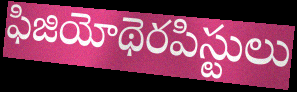
ఫిజియోథెరపిస్టులు